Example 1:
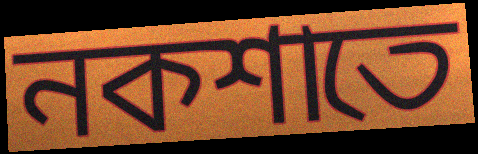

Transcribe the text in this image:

নকশাতে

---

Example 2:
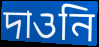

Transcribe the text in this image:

দাওনি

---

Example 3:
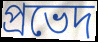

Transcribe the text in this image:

প্রভেদ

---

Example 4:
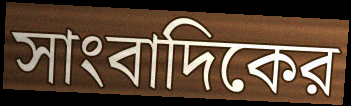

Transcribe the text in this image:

সাংবাদিকের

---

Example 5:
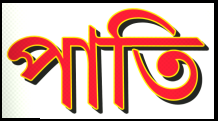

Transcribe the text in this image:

পাতি